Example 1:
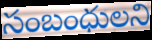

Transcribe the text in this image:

సంబంధులని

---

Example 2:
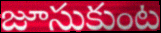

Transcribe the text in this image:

జూసుకుంట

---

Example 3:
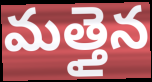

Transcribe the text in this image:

మత్తైన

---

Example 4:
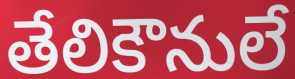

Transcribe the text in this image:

తేలికౌనులే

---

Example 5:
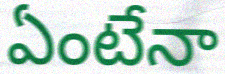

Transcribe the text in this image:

ఏంటేనా